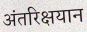
अंतरिक्षयान